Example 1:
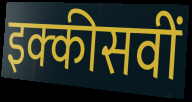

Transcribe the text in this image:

इक्‍कीसवीं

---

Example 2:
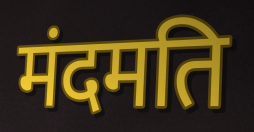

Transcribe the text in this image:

मंदमति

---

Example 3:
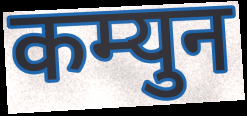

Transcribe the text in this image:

कम्युन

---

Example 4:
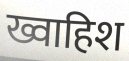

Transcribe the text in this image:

ख्वाहिश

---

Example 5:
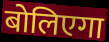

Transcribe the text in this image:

बोलिएगा